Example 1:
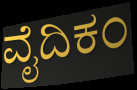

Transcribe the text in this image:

ವೈದಿಕಂ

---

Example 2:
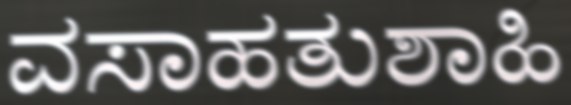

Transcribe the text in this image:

ವಸಾಹತುಶಾಹಿ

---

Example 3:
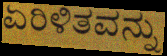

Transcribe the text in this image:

ಏರಿಳಿತವನ್ನು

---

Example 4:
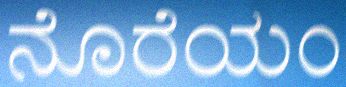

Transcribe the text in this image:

ನೊರೆಯಂ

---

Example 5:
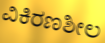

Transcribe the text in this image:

ವಿಕಿರಣಶೀಲ